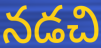
నడచి